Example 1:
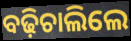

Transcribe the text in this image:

ବଢ଼ିଚାଲିଲେ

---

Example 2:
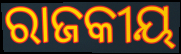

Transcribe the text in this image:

ରାଜକୀୟ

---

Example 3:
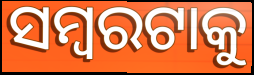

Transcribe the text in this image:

ସମ୍ବରଟାକୁ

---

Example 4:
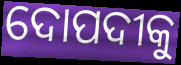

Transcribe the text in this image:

ଦୋପଦୀକୁ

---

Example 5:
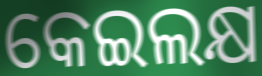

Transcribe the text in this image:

କେଇଲକ୍ଷ